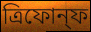
ত্রিফোন্ফ